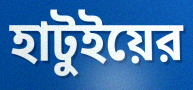
হাটুইয়ের